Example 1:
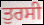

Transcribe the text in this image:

ਤੁਰਸੀ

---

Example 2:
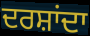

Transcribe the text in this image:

ਦਰਸ਼ਾਂਦਾ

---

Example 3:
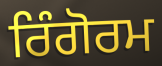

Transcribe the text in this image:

ਰਿੰਗੋਰਮ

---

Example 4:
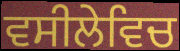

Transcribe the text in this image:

ਵਸੀਲੇਵਿਚ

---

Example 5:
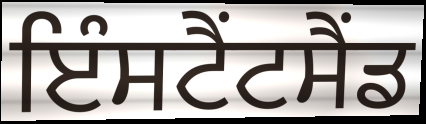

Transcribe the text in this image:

ਇੰਸਟੈਂਟਸੈਂਡ